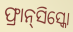
ଫ୍ରାନ୍‌ସିସ୍କୋ